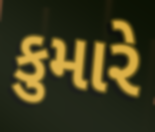
કુમારે